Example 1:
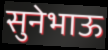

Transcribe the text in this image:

सुनेभाऊ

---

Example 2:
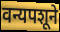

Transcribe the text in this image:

वन्यपशूने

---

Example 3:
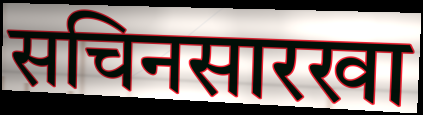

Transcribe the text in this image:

सचिनसारखा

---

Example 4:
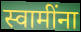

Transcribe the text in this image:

स्वामींना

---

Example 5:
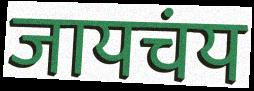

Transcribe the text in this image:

जायचंय